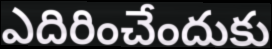
ఎదిరించేందుకు